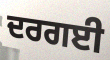
ਦਰਗਈ